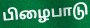
பிழைபாடு